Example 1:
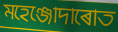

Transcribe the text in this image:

মহেঞ্জোদাৰোত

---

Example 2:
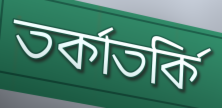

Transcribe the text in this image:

তৰ্কাতৰ্কি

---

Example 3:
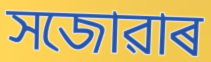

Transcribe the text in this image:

সজোৱাৰ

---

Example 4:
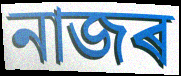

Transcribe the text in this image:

নাজৰ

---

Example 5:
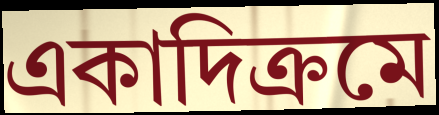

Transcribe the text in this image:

একাদিক্ৰমে